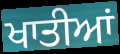
ਖਾਤੀਆਂ